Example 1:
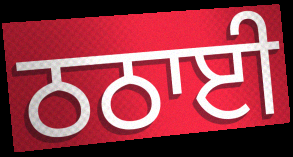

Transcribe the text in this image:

ਠਠਾਈ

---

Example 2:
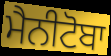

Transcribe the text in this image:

ਮੈਨੀਟੋਬਾ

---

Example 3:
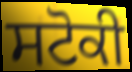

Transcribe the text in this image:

ਸਟੋਕੀ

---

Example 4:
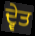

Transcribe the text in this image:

ਦ੍ਵੇਤ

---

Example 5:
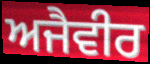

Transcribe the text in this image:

ਅਜੈਵੀਰ